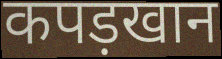
कपड़खान